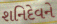
શનિદેવને